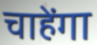
चाहेंगा